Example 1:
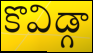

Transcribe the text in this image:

కొవిడ్గా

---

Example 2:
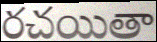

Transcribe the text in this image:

రచయితా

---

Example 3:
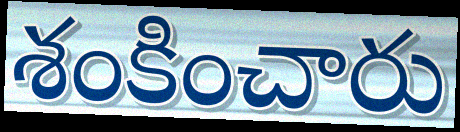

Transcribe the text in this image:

శంకించారు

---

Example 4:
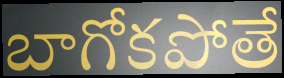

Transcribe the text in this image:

బాగోకపోతే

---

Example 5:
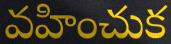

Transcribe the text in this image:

వహించుక